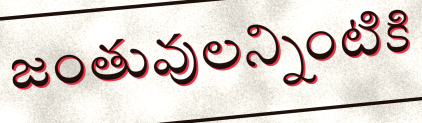
జంతువులన్నింటికి